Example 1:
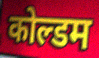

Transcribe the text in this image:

कोल्डम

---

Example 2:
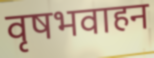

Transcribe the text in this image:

वृषभवाहन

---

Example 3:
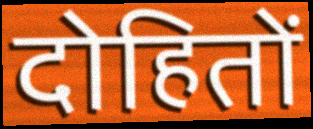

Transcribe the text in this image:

दोहितों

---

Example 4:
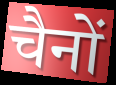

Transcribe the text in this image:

चैनों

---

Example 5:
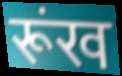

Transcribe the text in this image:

रूंख